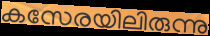
കസേരയിലിരുന്നു